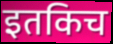
इतकिच